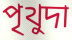
পৃথুদা